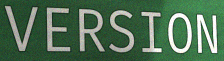
VERSION